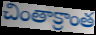
చింతాక్రాంత